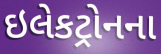
ઇલેકટ્રોનના